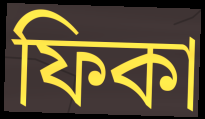
ফিকা